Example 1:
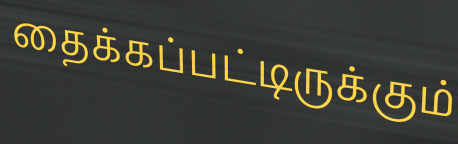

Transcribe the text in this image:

தைக்கப்பட்டிருக்கும்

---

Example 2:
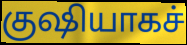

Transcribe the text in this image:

குஷியாகச்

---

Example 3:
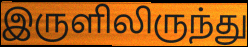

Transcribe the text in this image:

இருளிலிருந்து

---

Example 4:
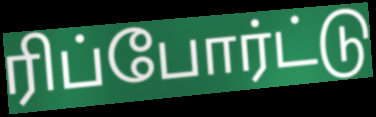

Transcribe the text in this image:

ரிப்போர்ட்டு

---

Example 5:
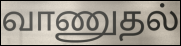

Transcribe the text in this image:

வாணுதல்